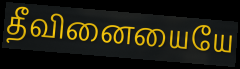
தீவினையையே